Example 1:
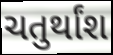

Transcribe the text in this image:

ચતુર્થાંશ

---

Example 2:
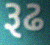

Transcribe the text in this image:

રૂઢ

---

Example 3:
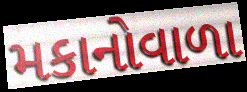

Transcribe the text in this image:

મકાનોવાળા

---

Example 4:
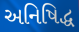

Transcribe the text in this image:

અનિષિદ્ધ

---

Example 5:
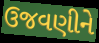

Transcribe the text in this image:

ઉજવણીને